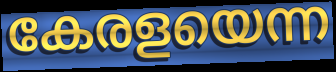
കേരളയെന്ന